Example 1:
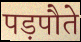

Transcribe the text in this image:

पड़पौते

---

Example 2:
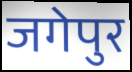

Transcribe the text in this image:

जगेपुर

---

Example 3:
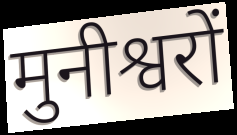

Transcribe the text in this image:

मुनीश्वरों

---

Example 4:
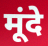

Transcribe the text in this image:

मूंदे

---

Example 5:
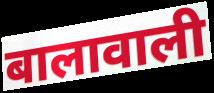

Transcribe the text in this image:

बालावाली